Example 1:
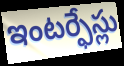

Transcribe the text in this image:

ఇంటర్ఫేస్లు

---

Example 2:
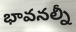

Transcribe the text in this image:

భావనల్నీ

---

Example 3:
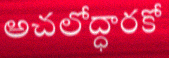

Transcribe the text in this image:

అచలోద్ధారకో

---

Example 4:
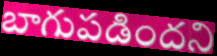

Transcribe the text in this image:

బాగుపడిందని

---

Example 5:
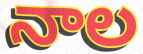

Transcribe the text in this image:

నాల